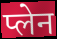
प्लेन